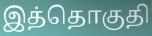
இத்தொகுதி